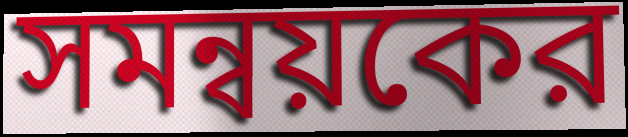
সমন্বয়কের